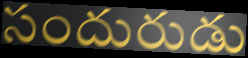
సందురుడు